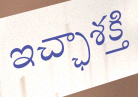
ఇచ్ఛాశక్తి